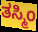
ತಸ್ಮಿಂ